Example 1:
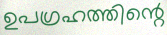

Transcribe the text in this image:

ഉപഗ്രഹത്തിന്റെ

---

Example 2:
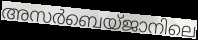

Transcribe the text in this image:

അസർബെയ്ജാനിലെ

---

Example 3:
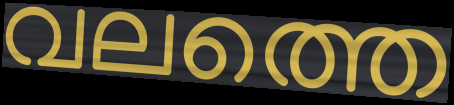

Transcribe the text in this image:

വലത്തെ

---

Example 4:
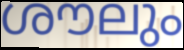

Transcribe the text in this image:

ശൗലും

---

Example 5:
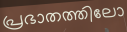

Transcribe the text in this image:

പ്രഭാതത്തിലോ